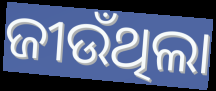
ଜୀଉଁଥିଲା